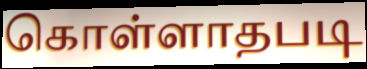
கொள்ளாதபடி